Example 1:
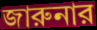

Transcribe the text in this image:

জারুনার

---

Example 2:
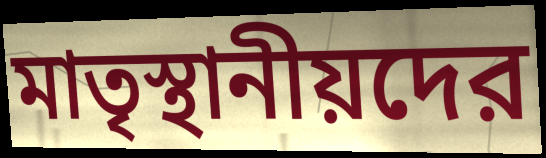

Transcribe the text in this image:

মাতৃস্থানীয়দের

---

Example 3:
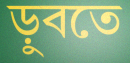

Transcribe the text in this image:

ড়ুবতে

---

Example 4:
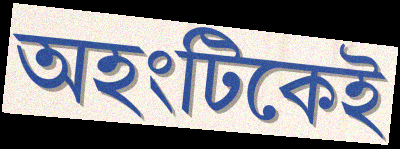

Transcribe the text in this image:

অহংটিকেই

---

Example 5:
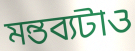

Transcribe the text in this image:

মন্তব্যটাও